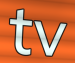
tv